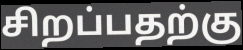
சிறப்பதற்கு